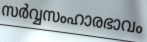
സർവ്വസംഹാരഭാവം